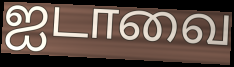
ஐடாவை